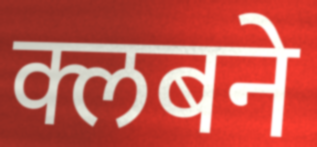
क्‍लबने